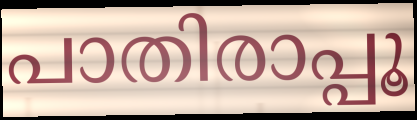
പാതിരാപ്പൂ